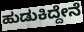
ಹುಡುಕಿದ್ದೇನೆ